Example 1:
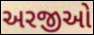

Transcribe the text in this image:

અરજીઓ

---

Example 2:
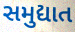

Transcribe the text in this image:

સમુદ્યાત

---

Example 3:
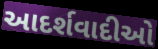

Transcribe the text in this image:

આદર્શવાદીઓ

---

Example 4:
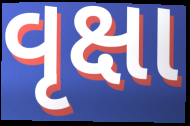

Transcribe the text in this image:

વૃક્ષા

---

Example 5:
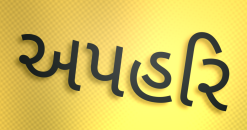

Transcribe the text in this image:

અપહરિ